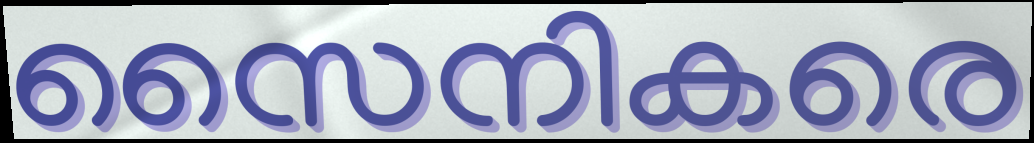
സൈനികരെ